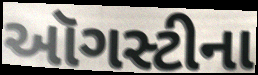
ઑગસ્ટીના